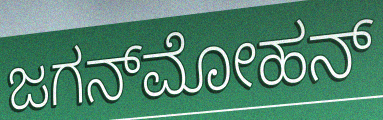
ಜಗನ್‌ಮೋಹನ್